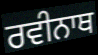
ਰਵੀਨਾਥ